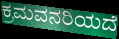
ಕ್ರಮವನರಿಯದೆ